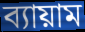
ব্যায়াম